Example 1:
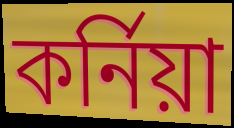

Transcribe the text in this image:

কর্নিয়া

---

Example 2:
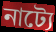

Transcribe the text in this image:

নাট্যে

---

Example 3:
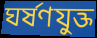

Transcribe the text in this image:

ঘর্ষণযুক্ত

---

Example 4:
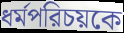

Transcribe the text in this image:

ধর্মপরিচয়কে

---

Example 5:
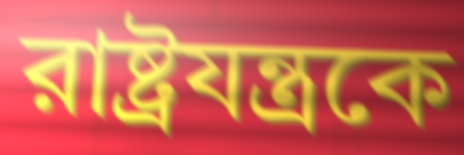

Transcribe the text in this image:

রাষ্ট্রযন্ত্রকে